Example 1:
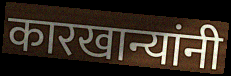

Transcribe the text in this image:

कारखान्यांनी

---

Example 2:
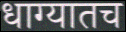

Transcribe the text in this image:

धाग्यातच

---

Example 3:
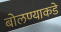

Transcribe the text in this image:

बोलण्याकडे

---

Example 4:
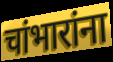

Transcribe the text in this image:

चांभारांना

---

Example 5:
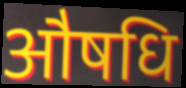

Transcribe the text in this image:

औषधि